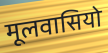
मूलवासियो